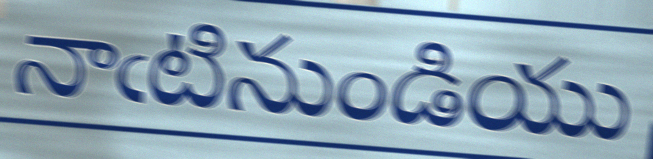
నాఁటినుండియు